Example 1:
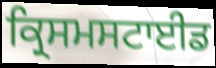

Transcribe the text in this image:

ਕ੍ਰਿਸਮਸਟਾਈਡ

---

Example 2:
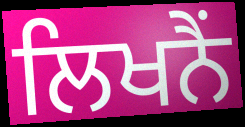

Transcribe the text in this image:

ਲਿਖਨੈਂ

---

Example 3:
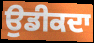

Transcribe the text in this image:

ਉਡੀਕਦਾ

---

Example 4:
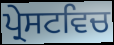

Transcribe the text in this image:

ਪ੍ਰੇਸਟਵਿਚ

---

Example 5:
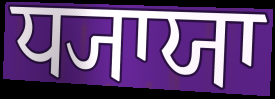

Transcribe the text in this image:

ਧ੍ਯਾਯਾ